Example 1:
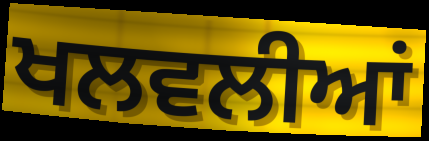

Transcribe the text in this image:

ਖਲਵਲੀਆਂ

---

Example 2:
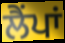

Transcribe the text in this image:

ਲੈਂਪਾਂ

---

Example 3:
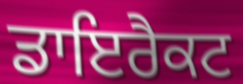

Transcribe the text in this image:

ਡਾਇਰੈਕਟ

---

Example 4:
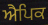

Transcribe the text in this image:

ਐਪਿਕ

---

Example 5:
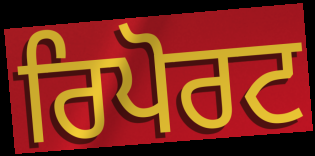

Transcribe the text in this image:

ਰਿਪੋਰਟ